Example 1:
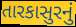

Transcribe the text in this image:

તારકાસુરનું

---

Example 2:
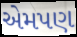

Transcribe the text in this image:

એમપણ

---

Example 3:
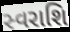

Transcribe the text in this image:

સ્વરાશિ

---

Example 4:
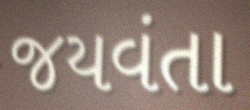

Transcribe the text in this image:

જયવંતા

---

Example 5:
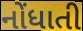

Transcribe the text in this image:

નોંધાતી